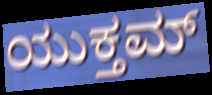
ಯುಕ್ತಮ್